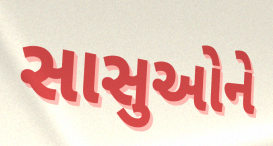
સાસુઓને